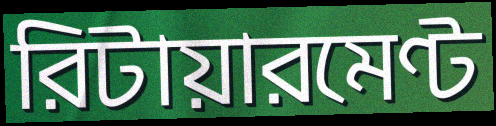
রিটায়ারমেণ্ট